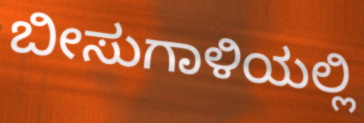
ಬೀಸುಗಾಳಿಯಲ್ಲಿ